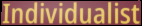
Individualist